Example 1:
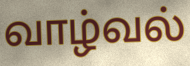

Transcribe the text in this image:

வாழ்வல்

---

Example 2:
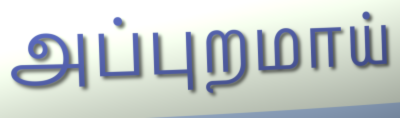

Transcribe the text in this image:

அப்புறமாய்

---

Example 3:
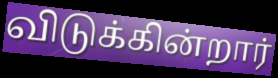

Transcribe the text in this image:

விடுக்கின்றார்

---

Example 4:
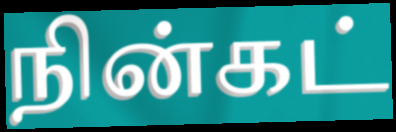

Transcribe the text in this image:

நின்கட்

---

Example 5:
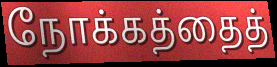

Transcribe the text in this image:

நோக்கத்தைத்